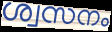
ശ്വസനം